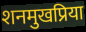
शनमुखप्रिया